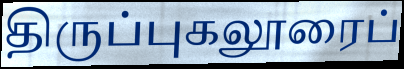
திருப்புகலூரைப்